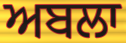
ਅਬਲਾ